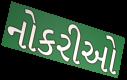
નોકરીઓ